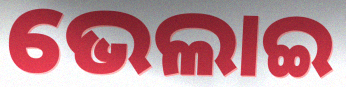
ଭେଲାଇ